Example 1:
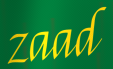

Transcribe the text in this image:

zaad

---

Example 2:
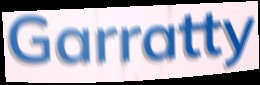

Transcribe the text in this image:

Garratty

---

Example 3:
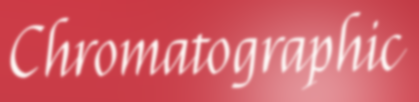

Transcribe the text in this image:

Chromatographic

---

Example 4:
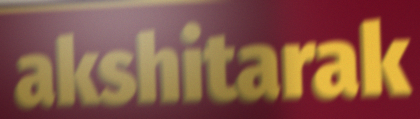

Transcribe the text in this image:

akshitarak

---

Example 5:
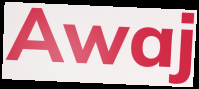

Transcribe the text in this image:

Awaj